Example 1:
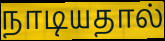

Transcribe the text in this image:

நாடியதால்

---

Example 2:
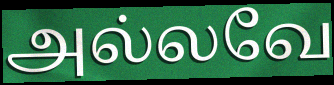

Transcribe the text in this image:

அல்லவே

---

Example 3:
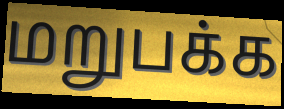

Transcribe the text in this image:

மறுபக்க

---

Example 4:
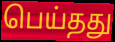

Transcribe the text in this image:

பெய்தது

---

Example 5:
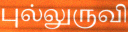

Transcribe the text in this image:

புல்லுருவி